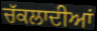
ਚੱਕਲਾਦੀਆਂ